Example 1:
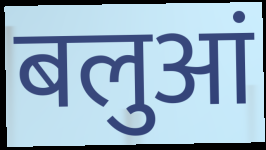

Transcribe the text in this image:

बलुआं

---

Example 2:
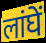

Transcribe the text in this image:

लांघें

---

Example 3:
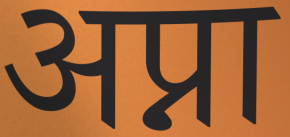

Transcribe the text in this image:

अप्ना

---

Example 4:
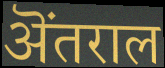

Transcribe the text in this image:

ऄंतराल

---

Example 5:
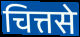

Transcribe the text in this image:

चित्तसे